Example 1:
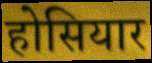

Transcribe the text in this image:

होसियार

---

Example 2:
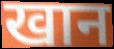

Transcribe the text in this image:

खान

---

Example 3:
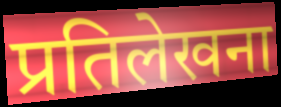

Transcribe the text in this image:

प्रतिलेखना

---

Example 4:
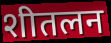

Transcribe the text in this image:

शीतलन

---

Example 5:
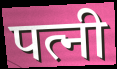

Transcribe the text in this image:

पत्‍नी